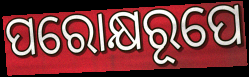
ପରୋକ୍ଷରୂପେ